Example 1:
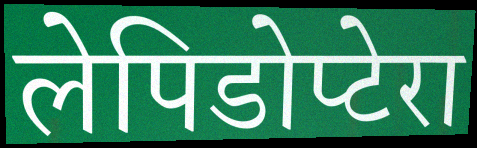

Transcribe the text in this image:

लेपिडोप्टेरा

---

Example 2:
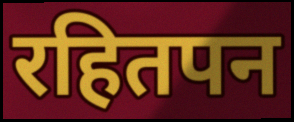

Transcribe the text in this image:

रहितपन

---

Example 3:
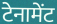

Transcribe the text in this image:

टेनामेंट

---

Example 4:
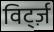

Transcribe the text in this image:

विर्ट्ज़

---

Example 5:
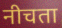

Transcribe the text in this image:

नीचता